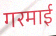
गरमाई